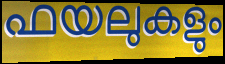
ഫയലുകളും